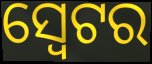
ସ୍ଵେଟର